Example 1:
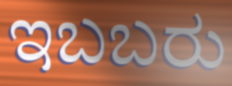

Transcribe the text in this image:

ಇಬಬರು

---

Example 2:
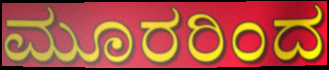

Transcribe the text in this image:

ಮೂರರಿಂದ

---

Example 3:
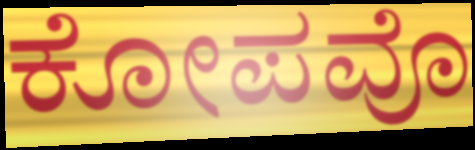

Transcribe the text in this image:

ಕೋಪವೊ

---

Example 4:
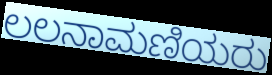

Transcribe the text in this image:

ಲಲನಾಮಣಿಯರು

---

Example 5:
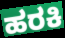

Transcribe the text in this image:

ಹರಕಿ